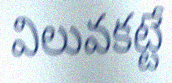
విలువకట్టే